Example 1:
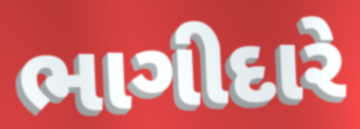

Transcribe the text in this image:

ભાગીદારે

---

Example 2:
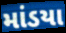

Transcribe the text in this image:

માંડયા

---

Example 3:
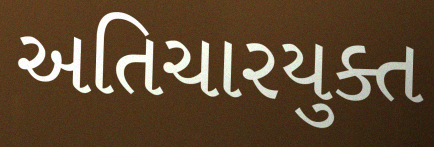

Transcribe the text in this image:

અતિચારયુક્ત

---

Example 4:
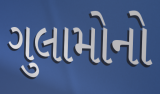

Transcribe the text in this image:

ગુલામોનો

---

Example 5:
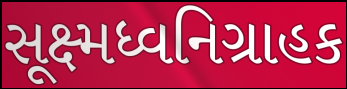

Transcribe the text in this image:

સૂક્ષ્મધ્વનિગ્રાહક